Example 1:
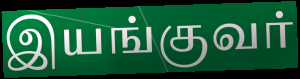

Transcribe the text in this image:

இயங்குவர்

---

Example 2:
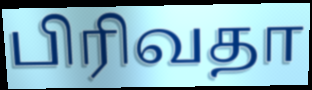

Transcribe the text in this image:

பிரிவதா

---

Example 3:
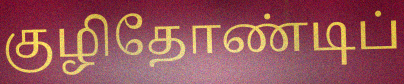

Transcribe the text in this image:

குழிதோண்டிப்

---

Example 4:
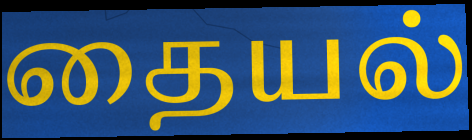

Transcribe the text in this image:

தையல்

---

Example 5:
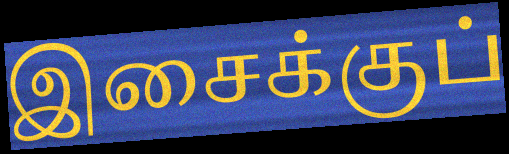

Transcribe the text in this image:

இசைக்குப்